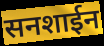
सनशाईन